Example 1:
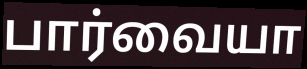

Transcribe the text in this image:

பார்வையா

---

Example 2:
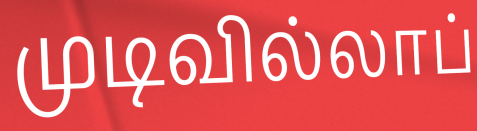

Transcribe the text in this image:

முடிவில்லாப்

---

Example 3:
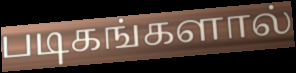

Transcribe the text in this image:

படிகங்களால்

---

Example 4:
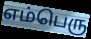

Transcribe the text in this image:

எம்பெரு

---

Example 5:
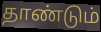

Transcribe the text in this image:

தாண்டும்